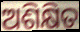
ଅଶିକ୍ଷିତ